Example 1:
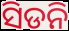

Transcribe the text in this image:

ସିଡନି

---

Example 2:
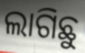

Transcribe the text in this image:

ଲାଗିଛୁ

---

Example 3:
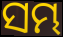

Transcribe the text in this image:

ସମ୍ଭ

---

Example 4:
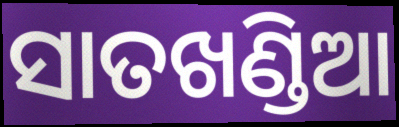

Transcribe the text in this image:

ସାତଖଣ୍ଡିଆ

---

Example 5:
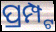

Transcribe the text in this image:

ପ୍ରମ୍ପ୍ଟ